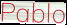
Pablo